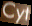
Cyt